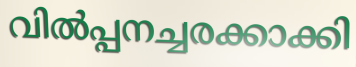
വിൽപ്പനച്ചരക്കാക്കി